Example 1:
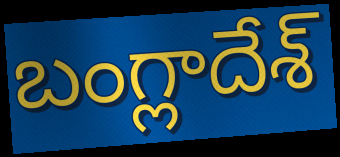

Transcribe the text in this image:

బంగ్లాదేశ్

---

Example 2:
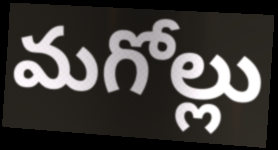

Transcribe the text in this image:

మగోల్లు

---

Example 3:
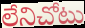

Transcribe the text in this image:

లేనిచోటు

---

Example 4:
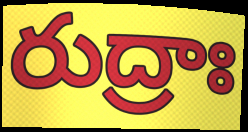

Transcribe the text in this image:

రుద్రాః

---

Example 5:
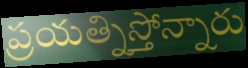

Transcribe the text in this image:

ప్రయత్నిస్తోన్నారు